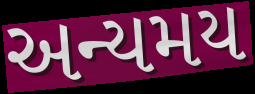
અન્યમય